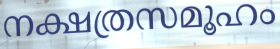
നക്ഷത്രസമൂഹം